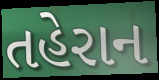
તહેરાન